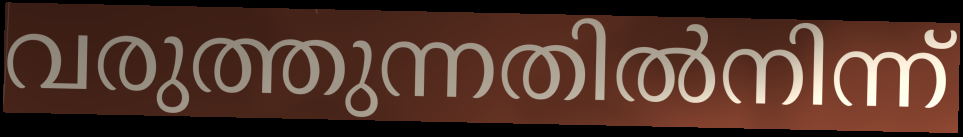
വരുത്തുന്നതിൽനിന്ന്